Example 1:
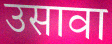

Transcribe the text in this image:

उसावा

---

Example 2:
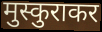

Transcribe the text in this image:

मुस्कुराकर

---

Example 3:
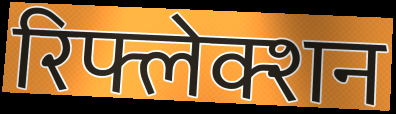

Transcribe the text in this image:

रिफ्लेक्शन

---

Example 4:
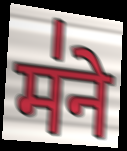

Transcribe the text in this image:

म॑ने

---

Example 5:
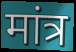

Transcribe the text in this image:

मांत्र